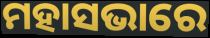
ମହାସଭାରେ